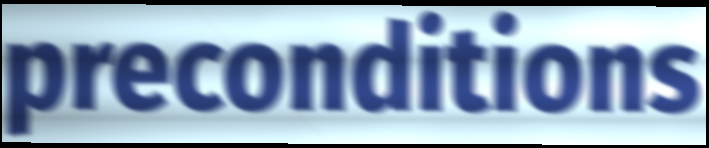
preconditions